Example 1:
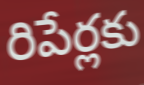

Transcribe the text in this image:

రిపేర్లకు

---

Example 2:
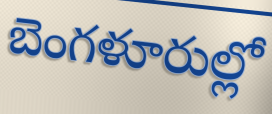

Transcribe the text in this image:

బెంగళూరుల్లో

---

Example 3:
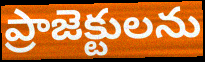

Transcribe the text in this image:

ప్రాజెక్టులను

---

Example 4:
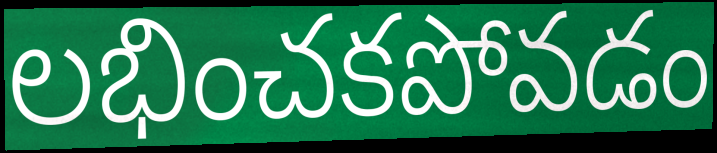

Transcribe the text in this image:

లభించకపోవడం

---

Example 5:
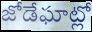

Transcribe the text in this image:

జోడేఘాట్లో